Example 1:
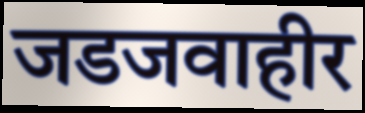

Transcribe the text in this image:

जडजवाहीर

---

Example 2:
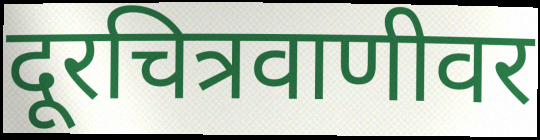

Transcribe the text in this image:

दूरचित्रवाणीवर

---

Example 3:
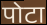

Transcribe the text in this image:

पोटा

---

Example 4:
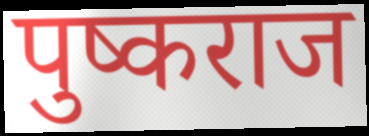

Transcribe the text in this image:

पुष्कराज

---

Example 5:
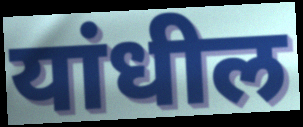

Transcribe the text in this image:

यांधील